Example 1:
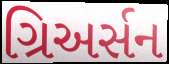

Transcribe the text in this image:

ગ્રિઅર્સન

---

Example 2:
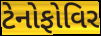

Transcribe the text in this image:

ટેનોફોવિર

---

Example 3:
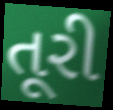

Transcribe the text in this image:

તૂરી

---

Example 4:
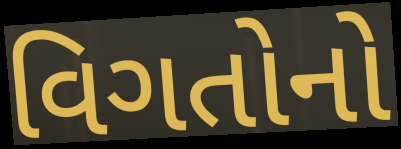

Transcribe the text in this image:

વિગતોનો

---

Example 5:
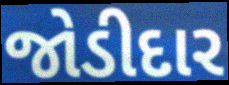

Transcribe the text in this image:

જોડીદાર